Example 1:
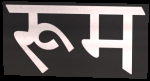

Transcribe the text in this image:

रूम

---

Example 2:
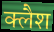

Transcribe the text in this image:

क्लैश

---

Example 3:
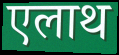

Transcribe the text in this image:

एलाथ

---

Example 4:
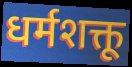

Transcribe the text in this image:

धर्मशक्तू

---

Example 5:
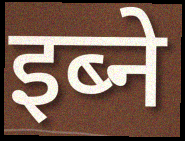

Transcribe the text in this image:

इब्ने